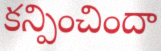
కన్పించిందా